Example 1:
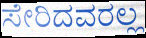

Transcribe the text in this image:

ಸೇರಿದವರಲ್ಲ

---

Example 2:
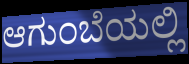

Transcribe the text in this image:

ಆಗುಂಬೆಯಲ್ಲಿ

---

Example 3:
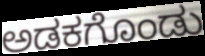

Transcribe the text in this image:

ಅಡಕಗೊಂಡು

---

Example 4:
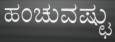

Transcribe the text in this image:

ಹಂಚುವಷ್ಟು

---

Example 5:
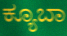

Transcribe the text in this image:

ಕ್ಯೂಬಾ